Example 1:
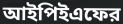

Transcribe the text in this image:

আইপিইএফের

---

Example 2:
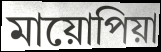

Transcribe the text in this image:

মায়োপিয়া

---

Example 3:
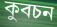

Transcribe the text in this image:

কুবচন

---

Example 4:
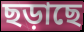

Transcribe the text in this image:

ছড়াছে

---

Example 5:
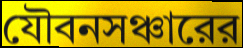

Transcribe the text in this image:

যৌবনসঞ্চারের